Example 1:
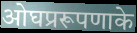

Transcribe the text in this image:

ओघप्ररूपणाके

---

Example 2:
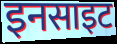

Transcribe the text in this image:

इनसाइट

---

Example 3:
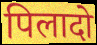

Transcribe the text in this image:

पिलादो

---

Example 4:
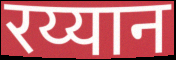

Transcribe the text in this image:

रय्यान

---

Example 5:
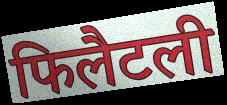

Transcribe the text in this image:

फिलैटली